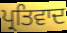
ਪ੍ਰਤਿਵਾਦ